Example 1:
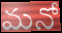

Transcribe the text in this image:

మనో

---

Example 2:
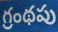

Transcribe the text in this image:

గ్రంథపు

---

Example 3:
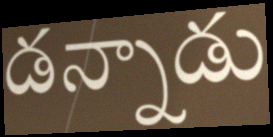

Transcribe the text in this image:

డన్నాడు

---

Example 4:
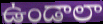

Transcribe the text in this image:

ఉండాలా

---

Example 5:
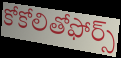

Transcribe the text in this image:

కోకోలితోఫోర్స్